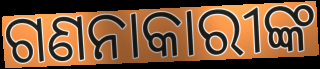
ଗଣନାକାରୀଙ୍କ